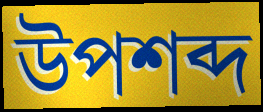
উপশব্দ